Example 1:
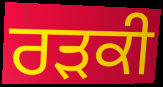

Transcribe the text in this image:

ਰੜਕੀ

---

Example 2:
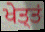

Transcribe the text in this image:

ਖੇਤ੍ਤਂ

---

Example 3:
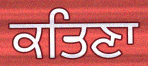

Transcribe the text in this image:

ਕਤਿਣਾ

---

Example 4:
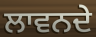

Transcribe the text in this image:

ਲਾਵਨਦੇ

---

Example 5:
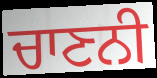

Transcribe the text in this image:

ਚਾਣਨੀ